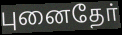
புனைதேர்